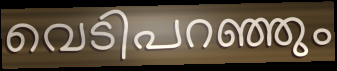
വെടിപറഞ്ഞും